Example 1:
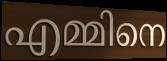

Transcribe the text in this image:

എമ്മിനെ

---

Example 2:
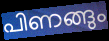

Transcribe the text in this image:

പിണങ്ങും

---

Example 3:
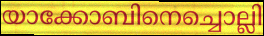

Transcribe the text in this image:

യാക്കോബിനെച്ചൊല്ലി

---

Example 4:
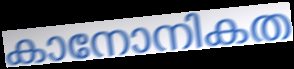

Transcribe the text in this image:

കാനോനികത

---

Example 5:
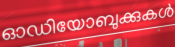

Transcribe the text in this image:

ഓഡിയോബുക്കുകൾ